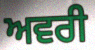
ਅਵਰੀ